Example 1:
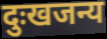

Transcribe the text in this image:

दुःखजन्य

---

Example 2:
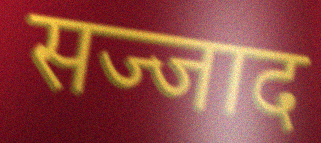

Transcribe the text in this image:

सज्‍जाद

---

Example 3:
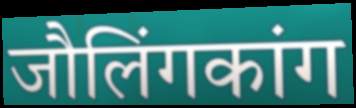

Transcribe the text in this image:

जौलिंगकांग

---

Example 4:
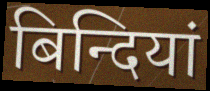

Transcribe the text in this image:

बिन्दियां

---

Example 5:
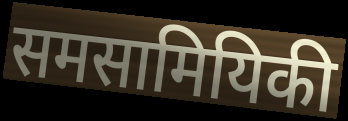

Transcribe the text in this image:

समसामियिकी